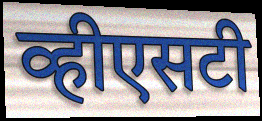
व्हीएसटी